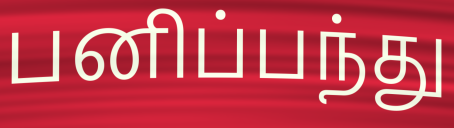
பனிப்பந்து